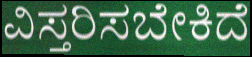
ವಿಸ್ತರಿಸಬೇಕಿದೆ